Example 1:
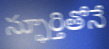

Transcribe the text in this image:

స్ఫూర్తితోనే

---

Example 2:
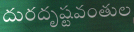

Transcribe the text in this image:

దురదృష్టవంతుల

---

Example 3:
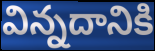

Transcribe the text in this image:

విన్నదానికి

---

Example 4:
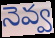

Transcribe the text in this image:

నెవ్వ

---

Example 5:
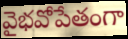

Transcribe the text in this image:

వైభవోపేతంగా